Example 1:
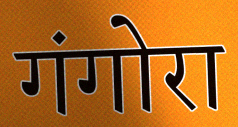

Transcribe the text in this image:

गंगोरा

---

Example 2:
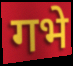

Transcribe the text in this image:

गभे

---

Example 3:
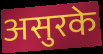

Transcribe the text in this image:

असुरके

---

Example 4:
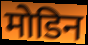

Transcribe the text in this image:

मोडिन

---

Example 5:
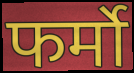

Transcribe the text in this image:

फर्मो